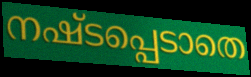
നഷ്ടപ്പെടാതെ